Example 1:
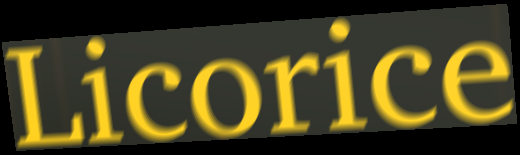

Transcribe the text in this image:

Licorice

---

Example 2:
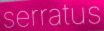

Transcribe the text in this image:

serratus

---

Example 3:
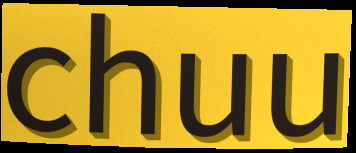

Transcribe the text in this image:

chuu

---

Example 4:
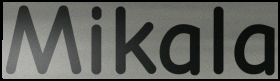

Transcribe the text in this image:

Mikala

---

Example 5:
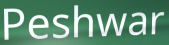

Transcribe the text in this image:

Peshwar